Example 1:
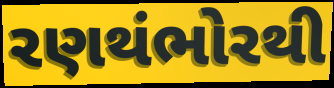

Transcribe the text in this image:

રણથંભોરથી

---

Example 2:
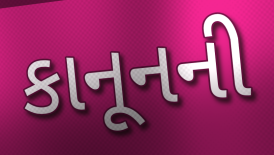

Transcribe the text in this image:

કાનૂનની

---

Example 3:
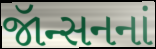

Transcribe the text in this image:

જૉન્સનનાં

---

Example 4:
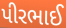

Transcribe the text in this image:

પીરભાઈ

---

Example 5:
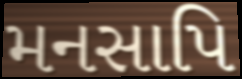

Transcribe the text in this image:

મનસાપિ